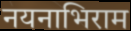
नयनाभिराम